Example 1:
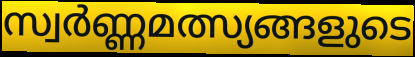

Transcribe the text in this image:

സ്വർണ്ണമത്സ്യങ്ങളുടെ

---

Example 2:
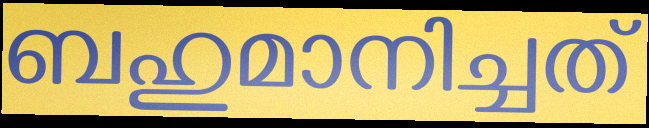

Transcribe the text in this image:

ബഹുമാനിച്ചത്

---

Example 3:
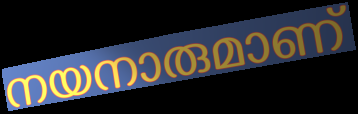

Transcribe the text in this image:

നയനാരുമാണ്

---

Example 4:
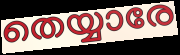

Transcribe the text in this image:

തെയ്യാരേ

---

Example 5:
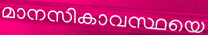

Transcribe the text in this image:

മാനസികാവസ്ഥയെ